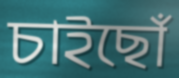
চাইছোঁ